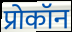
प्रोकॉन